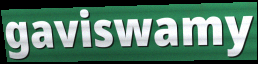
gaviswamy